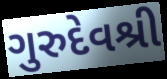
ગુરુદેવશ્રી